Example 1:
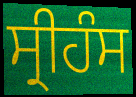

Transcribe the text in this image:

ਸ੍ਰੀਹੰਸ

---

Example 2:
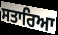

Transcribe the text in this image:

ਸਤਾਰਿਆ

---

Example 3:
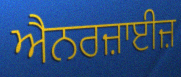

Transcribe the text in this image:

ਐਨਰਜ਼ਾਈਜ਼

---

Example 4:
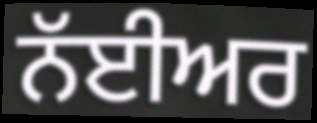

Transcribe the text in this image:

ਨੱਈਅਰ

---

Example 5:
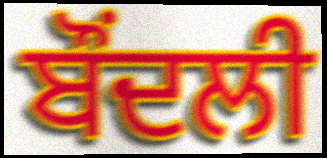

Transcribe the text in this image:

ਬੌਂਦਲੀ